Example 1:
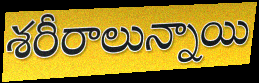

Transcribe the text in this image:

శరీరాలున్నాయి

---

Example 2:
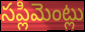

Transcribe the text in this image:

సప్లిమెంట్లు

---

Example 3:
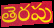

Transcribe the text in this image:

తెరపు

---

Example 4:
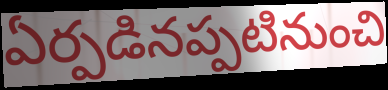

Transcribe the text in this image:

ఏర్పడినప్పటినుంచి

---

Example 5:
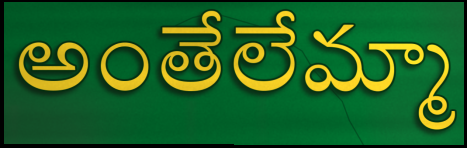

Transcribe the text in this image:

అంతేలేమ్మా